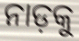
ନାଡ଼କୁ